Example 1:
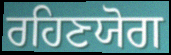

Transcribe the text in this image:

ਰਹਿਣਯੋਗ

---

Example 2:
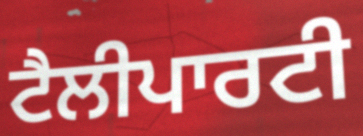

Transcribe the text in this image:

ਟੈਲੀਪਾਰਟੀ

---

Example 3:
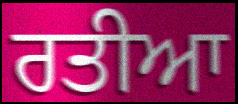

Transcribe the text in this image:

ਰਤੀਆ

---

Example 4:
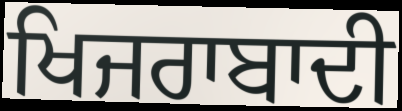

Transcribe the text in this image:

ਖਿਜਰਾਬਾਦੀ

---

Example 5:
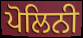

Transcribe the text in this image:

ਪੋਲਿਨੀ